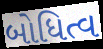
બોધિત્વ